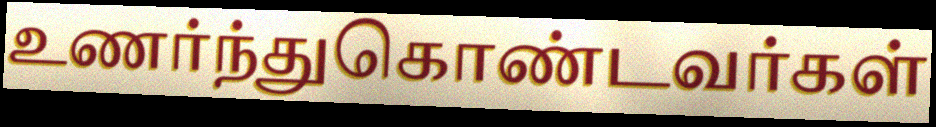
உணர்ந்துகொண்டவர்கள்